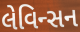
લેવિન્સન